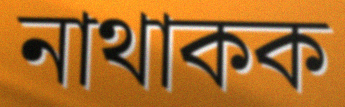
নাথাকক